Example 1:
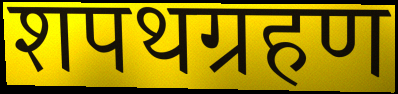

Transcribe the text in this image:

शपथग्रहण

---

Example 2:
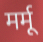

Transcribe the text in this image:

मर्मू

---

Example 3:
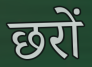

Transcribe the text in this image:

छरों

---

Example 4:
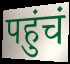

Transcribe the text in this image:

पहुंचं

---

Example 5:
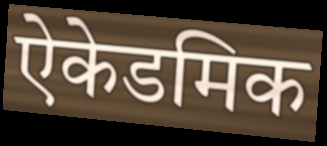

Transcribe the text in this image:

ऐकेडमिक